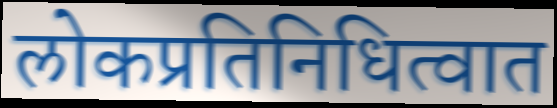
लोकप्रतिनिधित्वात